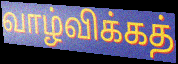
வாழ்விக்கத்